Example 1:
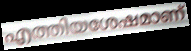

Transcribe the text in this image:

എത്തിയശേഷമാണ്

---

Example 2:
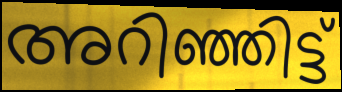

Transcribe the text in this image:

അറിഞ്ഞിട്ട്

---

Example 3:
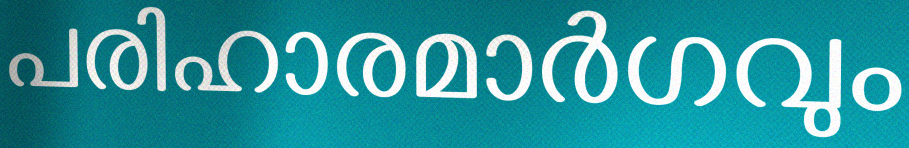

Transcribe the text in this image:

പരിഹാരമാർഗവും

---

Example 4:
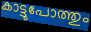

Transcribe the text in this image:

കാട്ടുപോത്തും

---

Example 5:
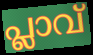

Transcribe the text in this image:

പ്ലാവ്